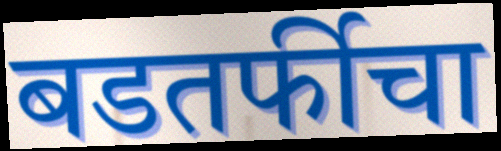
बडतर्फीचा